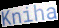
Kniha